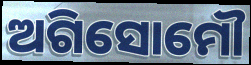
ଅଗିସୋମୌ